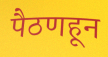
पैठणहून